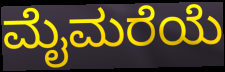
ಮೈಮರೆಯೆ